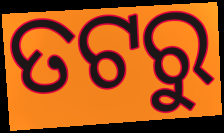
ତଟରୁ